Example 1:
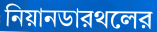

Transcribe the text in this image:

নিয়ানডারথলের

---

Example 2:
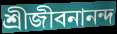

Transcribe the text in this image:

শ্রীজীবনানন্দ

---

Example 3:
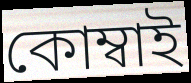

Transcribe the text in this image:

কোম্বাই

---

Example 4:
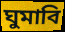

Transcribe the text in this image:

ঘুমাবি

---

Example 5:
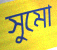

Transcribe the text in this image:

সুমো